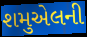
શમુએલની